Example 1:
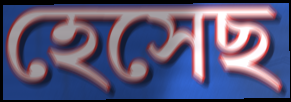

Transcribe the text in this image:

হেসেছ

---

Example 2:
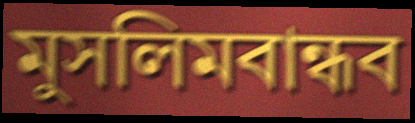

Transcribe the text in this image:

মুসলিমবান্ধব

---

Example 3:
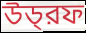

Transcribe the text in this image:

উড্‌রফ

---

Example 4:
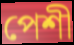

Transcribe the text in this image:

পেশী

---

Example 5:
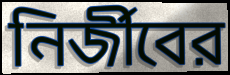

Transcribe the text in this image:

নির্জীবের